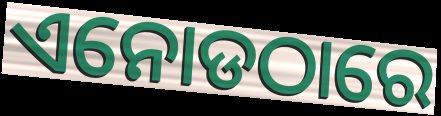
ଏନୋଡଠାରେ